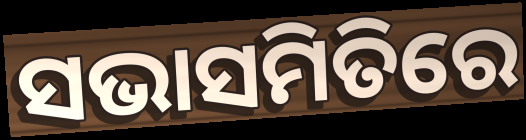
ସଭାସମିତିରେ